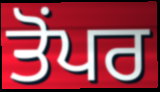
ਤੋਂਪਰ